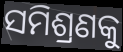
ସମିଶ୍ରଣକୁ